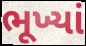
ભૂખ્યાં